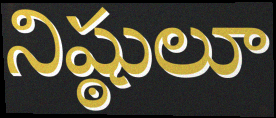
నిష్ఠులూ